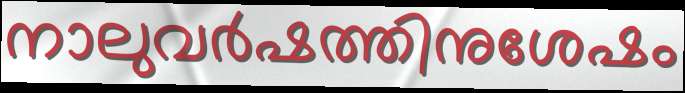
നാലുവർഷത്തിനുശേഷം